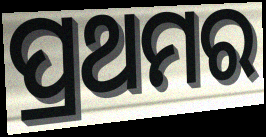
ପ୍ରଥମର